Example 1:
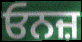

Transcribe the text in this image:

ਓਨਜ਼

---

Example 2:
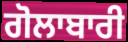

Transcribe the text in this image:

ਗੋਲਾਬਾਰੀ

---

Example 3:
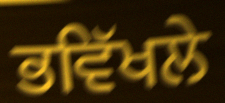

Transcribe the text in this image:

ਭਵਿੱਖਲੇ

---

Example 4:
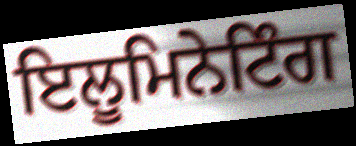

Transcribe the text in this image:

ਇਲੂਮਿਨੇਟਿੰਗ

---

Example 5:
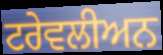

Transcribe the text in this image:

ਟਰੇਵਲੀਅਨ